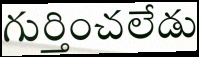
గుర్తించలేడు